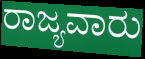
ರಾಜ್ಯವಾರು